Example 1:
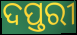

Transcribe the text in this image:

ଦପ୍ତରୀ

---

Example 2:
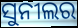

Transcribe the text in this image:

ସୁନୀଲର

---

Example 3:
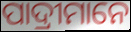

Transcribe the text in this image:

ପାଦ୍ରୀମାନେ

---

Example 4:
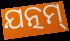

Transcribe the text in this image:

ଯତ୍ନମ୍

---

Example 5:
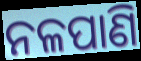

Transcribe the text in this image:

ନଳପାଣି